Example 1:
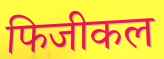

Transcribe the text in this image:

फिजीकल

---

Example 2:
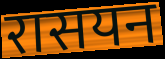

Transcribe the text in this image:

रासयन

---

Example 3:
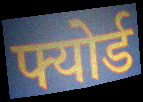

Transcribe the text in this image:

फ्योर्ड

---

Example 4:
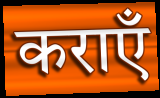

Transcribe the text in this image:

कराएँ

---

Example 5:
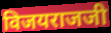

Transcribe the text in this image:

विजयराजजी